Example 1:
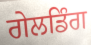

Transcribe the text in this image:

ਗੇਲਡਿੰਗ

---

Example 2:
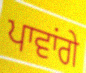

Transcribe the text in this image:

ਪਾਵਾਂਗੇ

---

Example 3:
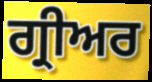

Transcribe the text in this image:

ਗ੍ਰੀਅਰ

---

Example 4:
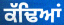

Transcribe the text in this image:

ਕੱਢਿਆਂ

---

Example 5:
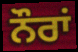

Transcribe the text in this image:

ਨੌਰਾਂ